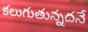
కలుగుతున్నదనే